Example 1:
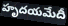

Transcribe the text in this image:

హృదయమేదీ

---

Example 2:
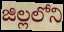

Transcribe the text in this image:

జిల్లలోని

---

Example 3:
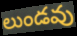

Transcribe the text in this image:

లుండవు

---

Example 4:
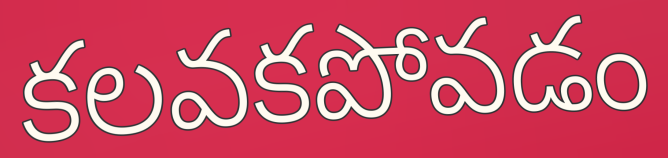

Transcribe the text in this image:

కలవకపోవడం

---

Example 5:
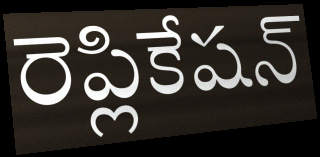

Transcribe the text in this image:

రెప్లికేషన్